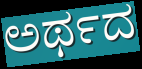
ಅರ್ಥದ